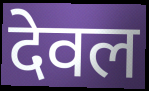
देवल